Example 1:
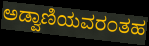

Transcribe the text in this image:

ಅಡ್ವಾಣಿಯವರಂತಹ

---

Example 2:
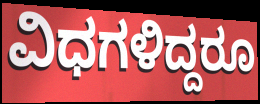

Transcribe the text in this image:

ವಿಧಗಳಿದ್ದರೂ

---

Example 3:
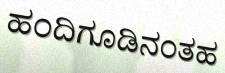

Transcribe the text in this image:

ಹಂದಿಗೂಡಿನಂತಹ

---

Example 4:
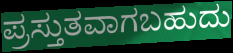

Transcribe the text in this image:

ಪ್ರಸ್ತುತವಾಗಬಹುದು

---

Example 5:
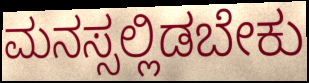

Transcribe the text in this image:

ಮನಸ್ಸಲ್ಲಿಡಬೇಕು